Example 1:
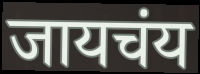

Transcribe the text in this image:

जायचंय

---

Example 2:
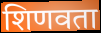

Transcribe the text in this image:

शिणवता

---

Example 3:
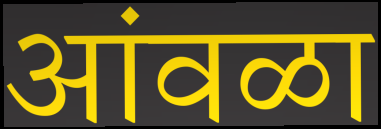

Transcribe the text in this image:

आंवळा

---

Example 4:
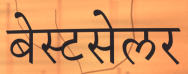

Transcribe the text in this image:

बेस्टसेलर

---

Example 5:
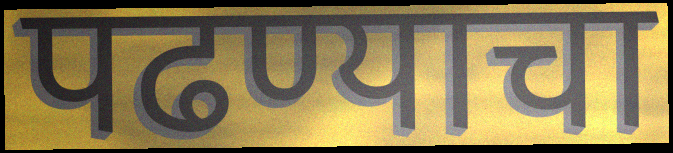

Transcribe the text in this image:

पढण्याचा